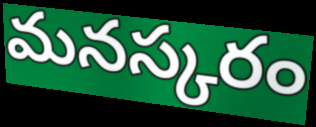
మనస్కరం